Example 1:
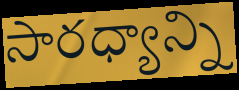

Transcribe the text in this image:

సారధ్యాన్ని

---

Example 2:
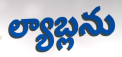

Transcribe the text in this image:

ల్యాబ్లను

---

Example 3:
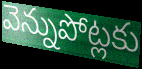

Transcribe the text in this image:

వెన్నుపోట్లకు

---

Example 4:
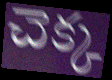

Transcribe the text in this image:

చెక్క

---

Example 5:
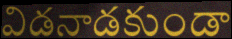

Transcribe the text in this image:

విడనాడకుండా